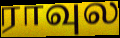
ராவுல